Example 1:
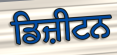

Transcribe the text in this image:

ਡਿਜ਼ੀਟਨ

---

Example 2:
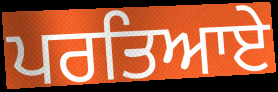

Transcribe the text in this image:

ਪਰਤਿਆਏ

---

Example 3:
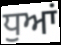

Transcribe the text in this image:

ਧੁਆਂ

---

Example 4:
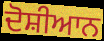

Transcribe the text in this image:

ਦੋਸ਼ੀਆਨ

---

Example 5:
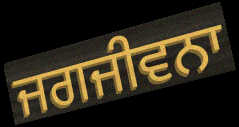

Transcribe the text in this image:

ਜਗਜੀਵਨਾ